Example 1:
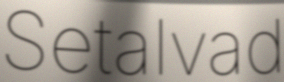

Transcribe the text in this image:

Setalvad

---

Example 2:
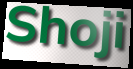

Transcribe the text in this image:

Shoji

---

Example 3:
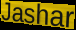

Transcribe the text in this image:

Jashar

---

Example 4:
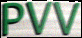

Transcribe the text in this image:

PVV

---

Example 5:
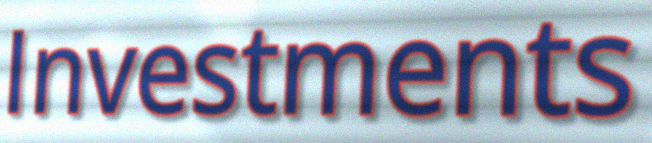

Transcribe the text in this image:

Investments